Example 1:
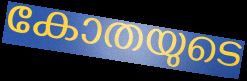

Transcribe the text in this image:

കോതയുടെ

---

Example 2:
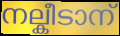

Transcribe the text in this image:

നല്കീടാന്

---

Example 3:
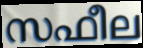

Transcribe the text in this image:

സഫീല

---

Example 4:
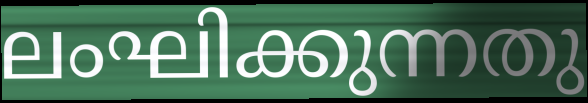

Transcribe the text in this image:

ലംഘിക്കുന്നതു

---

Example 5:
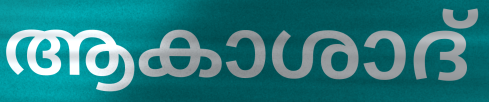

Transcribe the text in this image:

ആകാശാദ്